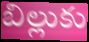
బిల్లుకు